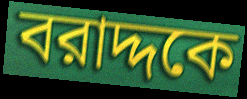
বরাদ্দকে